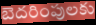
బెదరింపులకు